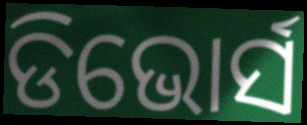
ଡିଭୋର୍ସ